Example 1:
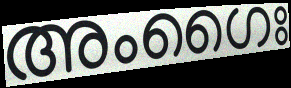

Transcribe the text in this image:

അംഗൈഃ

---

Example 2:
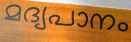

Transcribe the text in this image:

മദ്യപാനം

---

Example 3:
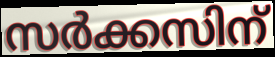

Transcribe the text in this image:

സർക്കസിന്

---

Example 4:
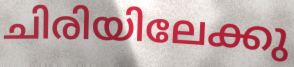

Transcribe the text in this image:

ചിരിയിലേക്കു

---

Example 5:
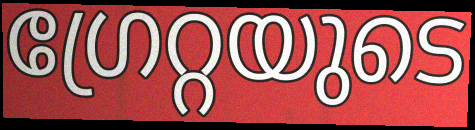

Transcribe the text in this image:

ഗ്രേറ്റയുടെ